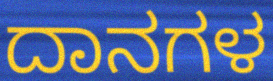
ದಾನಗಳ